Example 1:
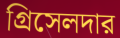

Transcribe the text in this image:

গ্রিসেলদার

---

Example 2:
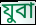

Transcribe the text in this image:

যুবা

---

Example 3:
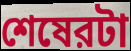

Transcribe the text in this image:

শেষেরটা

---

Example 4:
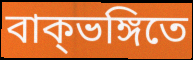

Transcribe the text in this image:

বাক্ভঙ্গিতে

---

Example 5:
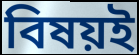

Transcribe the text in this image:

বিষয়ই